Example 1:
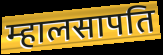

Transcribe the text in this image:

म्हालसापति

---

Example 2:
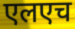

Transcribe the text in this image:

एलएच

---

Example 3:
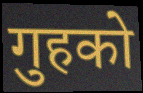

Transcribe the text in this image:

गुहको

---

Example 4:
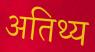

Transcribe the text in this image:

अतिथ्य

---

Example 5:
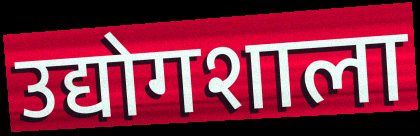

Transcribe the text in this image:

उद्योगशाला